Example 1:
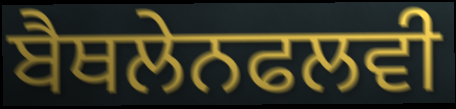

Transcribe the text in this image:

ਬੈਥਲੇਨਫਲਵੀ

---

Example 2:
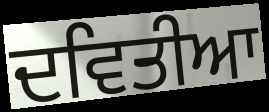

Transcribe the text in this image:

ਦਵਿਤੀਆ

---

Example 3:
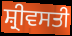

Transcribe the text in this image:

ਸ਼੍ਰੀਵਸਤੀ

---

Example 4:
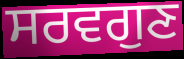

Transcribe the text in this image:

ਸਰਵਗੁਣ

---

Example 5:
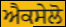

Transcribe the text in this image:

ਐਕਸੇਲੋ